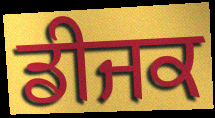
ਡੀਜਕ